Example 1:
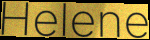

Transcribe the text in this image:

Helene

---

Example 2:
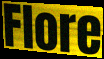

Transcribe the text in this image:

Flore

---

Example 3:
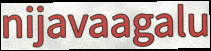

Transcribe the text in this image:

nijavaagalu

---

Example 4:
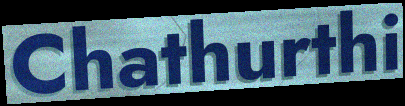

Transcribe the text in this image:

Chathurthi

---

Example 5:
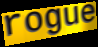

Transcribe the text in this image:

rogue